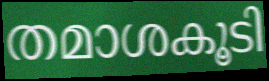
തമാശകൂടി